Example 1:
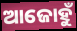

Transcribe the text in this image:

ଆଜୋହୁଁ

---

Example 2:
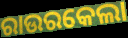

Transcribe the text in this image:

ରାଉରକେଲା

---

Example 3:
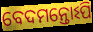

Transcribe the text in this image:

ବେଦମନ୍ତୋଽପି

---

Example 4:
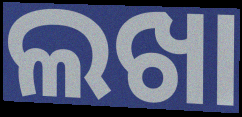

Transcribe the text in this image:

ଲଖା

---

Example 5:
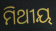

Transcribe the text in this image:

ମିଥୀୟ